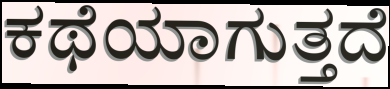
ಕಥೆಯಾಗುತ್ತದೆ